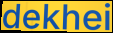
dekhei